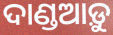
ଦାଣ୍ଡଆଡ଼ୁ